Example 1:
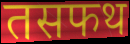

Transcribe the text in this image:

तसफथ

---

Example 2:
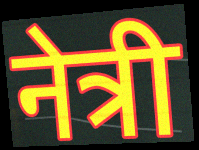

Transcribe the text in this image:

नेत्री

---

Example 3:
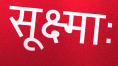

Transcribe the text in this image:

सूक्ष्माः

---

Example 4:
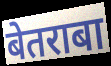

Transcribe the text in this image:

बेतराबा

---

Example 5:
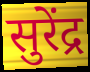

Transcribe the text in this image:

सुरेंद्र